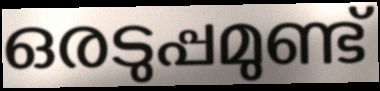
ഒരടുപ്പമുണ്ട്